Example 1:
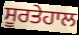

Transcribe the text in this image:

ਸੂਰਤੇਹਾਲ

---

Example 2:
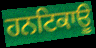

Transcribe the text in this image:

ਹਨਟਿਕਾਊ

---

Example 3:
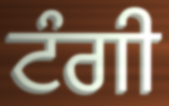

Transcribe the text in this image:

ਟੰਗੀ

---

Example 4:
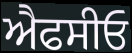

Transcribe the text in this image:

ਐਫਸੀਓ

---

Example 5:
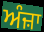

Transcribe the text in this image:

ਅੰਜ਼ਾ